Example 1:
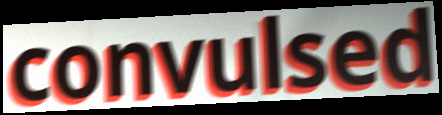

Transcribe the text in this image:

convulsed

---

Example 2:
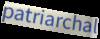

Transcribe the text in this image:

patriarchal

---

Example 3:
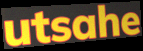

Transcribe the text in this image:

utsahe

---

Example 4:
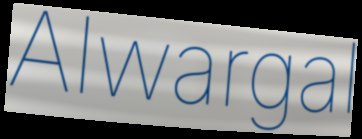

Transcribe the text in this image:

Alwargal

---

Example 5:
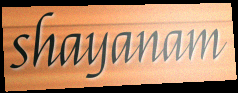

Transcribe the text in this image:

shayanam